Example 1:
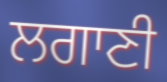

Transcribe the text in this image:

ਲਗਾਣੀ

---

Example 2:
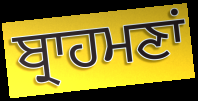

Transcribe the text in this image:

ਬ੍ਰਾਹਮਣਾਂ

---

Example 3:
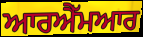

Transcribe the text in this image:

ਆਰਐੱਮਆਰ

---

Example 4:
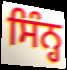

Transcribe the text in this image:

ਸਿੰਨ੍ਹ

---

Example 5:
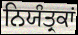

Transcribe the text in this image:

ਨਿਯੰਤ੍ਰਕਾਂ